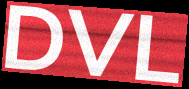
DVL